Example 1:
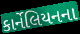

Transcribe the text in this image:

કાર્નેલિયનના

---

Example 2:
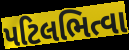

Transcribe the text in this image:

પટિલભિત્વા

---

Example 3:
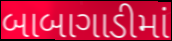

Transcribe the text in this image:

બાબાગાડીમાં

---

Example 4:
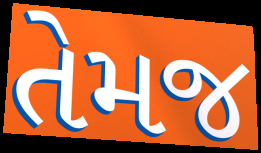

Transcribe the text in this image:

તેમજ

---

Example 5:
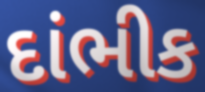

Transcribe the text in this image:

દાંભીક